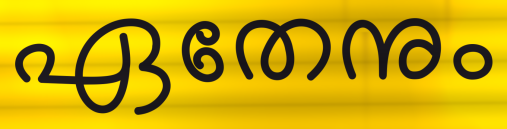
ഏതേനും